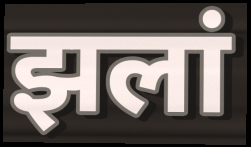
झलां